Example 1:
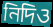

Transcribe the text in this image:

নিদিও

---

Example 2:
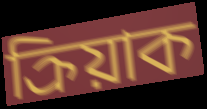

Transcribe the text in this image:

ক্ৰিয়াক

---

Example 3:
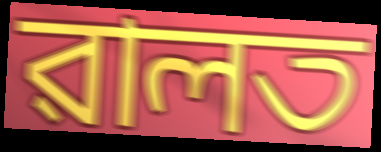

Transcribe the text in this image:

ৱালত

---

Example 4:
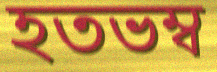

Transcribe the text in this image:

হতভম্ব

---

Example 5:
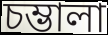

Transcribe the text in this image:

চম্ভালা